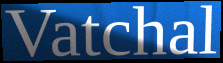
Vatchal